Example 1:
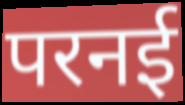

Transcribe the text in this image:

परनई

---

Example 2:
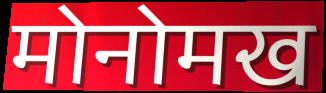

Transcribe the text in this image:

मोनोमख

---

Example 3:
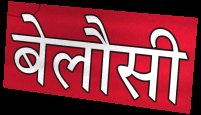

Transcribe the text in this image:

बेलौसी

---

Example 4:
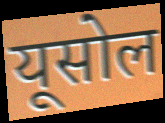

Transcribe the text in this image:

यूसोल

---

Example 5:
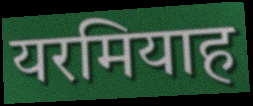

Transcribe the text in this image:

यरमियाह